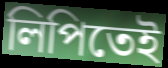
লিপিতেই